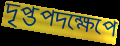
দৃপ্তপদক্ষেপে